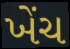
ખેંચ